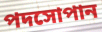
পদসোপান